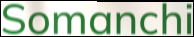
Somanchi